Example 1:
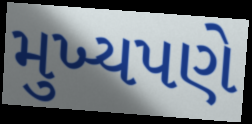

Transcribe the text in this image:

મુખ્યપણે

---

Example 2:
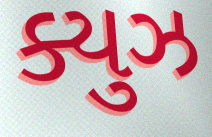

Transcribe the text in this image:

ક્યુઝ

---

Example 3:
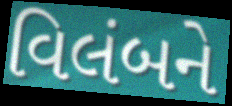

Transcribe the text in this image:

વિલંબને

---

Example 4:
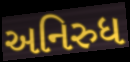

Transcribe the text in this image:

અનિરુધ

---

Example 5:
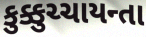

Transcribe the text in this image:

કુક્કુચ્ચાયન્તા